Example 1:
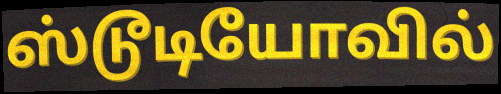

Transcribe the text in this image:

ஸ்டூடியோவில்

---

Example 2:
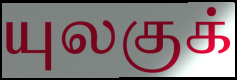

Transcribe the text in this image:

யுலகுக்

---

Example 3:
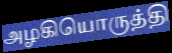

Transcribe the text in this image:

அழகியொருத்தி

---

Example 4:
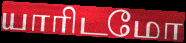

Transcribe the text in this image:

யாரிடமோ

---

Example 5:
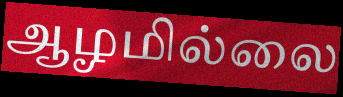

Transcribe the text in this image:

ஆழமில்லை